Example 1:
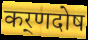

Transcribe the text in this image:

कर्णदोष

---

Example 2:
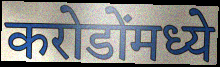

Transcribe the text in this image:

करोडोंमध्ये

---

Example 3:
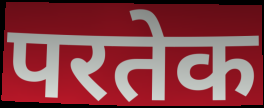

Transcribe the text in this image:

परतेक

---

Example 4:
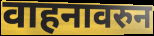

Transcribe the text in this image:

वाहनावरुन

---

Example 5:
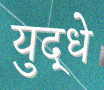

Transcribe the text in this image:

युद्धे